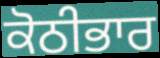
ਕੋਠੀਭਾਰ